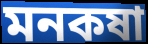
মনকষা